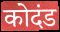
कोदंड